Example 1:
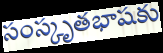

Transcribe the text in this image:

సంస్కృతభాషకు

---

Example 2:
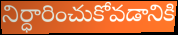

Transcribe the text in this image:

నిర్ధారించుకోవడానికి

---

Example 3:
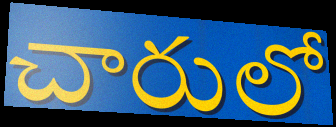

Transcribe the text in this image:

చారులో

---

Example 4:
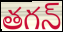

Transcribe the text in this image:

తగన్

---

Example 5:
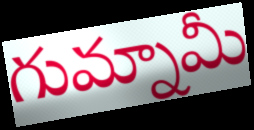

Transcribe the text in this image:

గుమ్నామీ